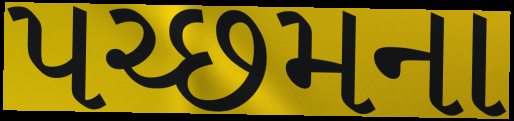
પચ્છમના